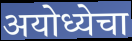
अयोध्येचा